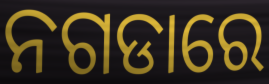
ନଗଡାରେ